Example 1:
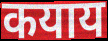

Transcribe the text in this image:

कयाय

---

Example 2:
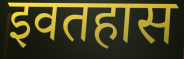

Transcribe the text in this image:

इवतहास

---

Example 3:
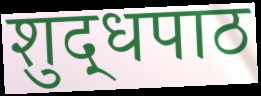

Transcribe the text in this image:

शुद्धपाठ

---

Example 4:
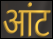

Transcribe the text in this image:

आंट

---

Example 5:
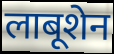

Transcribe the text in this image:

लाबूशेन